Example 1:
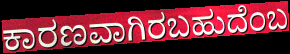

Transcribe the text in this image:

ಕಾರಣವಾಗಿರಬಹುದೆಂಬ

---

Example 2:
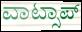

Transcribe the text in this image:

ವಾಟ್ಸಾಪ್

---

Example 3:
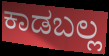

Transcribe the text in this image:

ಕಾಡಬಲ್ಲ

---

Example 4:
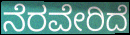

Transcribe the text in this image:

ನೆರವೇರಿದೆ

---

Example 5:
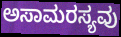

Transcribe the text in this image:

ಅಸಾಮರಸ್ಯವು